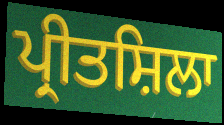
ਪ੍ਰੀਤਸ਼ਿਲਾ